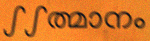
ഽഽത്മാനം